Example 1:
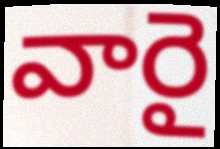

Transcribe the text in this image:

వారై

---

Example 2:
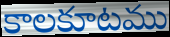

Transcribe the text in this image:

కాలకూటము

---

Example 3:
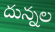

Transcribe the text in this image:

దున్నల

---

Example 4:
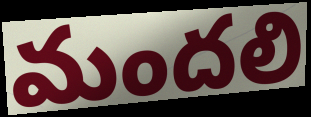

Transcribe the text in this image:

మందలి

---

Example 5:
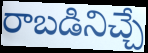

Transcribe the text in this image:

రాబడినిచ్చే